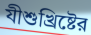
যীশুখ্রিষ্টের